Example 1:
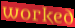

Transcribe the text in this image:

worked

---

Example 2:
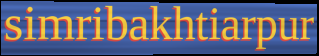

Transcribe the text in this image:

simribakhtiarpur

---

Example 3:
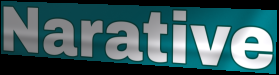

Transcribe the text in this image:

Narative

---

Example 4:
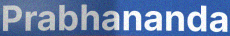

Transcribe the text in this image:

Prabhananda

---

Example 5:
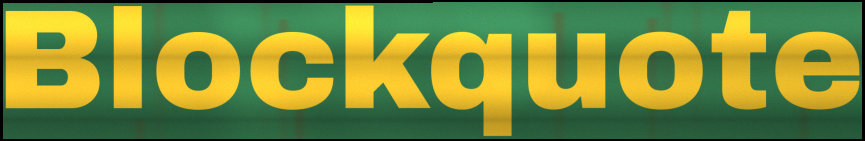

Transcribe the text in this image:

Blockquote